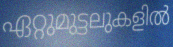
ഏറ്റുമുട്ടലുകളിൽ